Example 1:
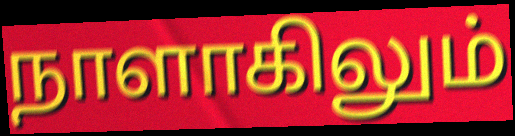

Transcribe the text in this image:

நாளாகிலும்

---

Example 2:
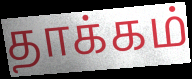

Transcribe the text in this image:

தாக்கம்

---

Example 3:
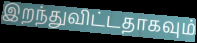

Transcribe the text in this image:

இறந்துவிட்டதாகவும்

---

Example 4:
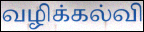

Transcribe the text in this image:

வழிக்கல்வி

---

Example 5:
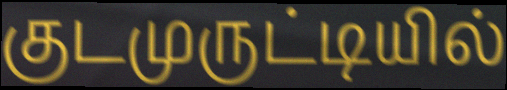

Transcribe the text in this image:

குடமுருட்டியில்